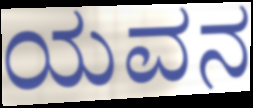
ಯವನ